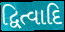
દ્વિત્વાદિ